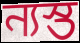
ন্যস্ত